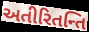
અતીરિતન્તિ